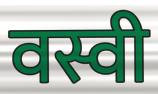
वस्वी